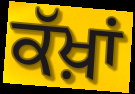
ਕੱਖ਼ਾਂ